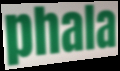
phala